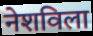
नेशविला